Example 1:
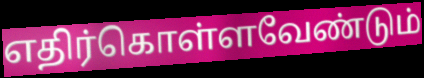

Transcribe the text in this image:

எதிர்கொள்ளவேண்டும்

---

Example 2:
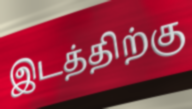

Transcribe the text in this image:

இடத்திற்கு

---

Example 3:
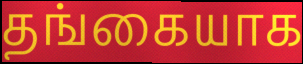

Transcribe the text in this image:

தங்கையாக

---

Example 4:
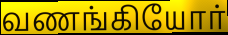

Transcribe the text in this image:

வணங்கியோர்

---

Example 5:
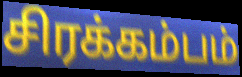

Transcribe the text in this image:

சிரக்கம்பம்